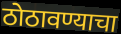
ठोठावण्याचा